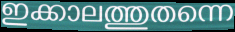
ഇക്കാലത്തുതന്നെ